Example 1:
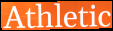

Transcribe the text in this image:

Athletic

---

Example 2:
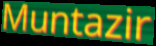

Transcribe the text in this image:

Muntazir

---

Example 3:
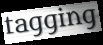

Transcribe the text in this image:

tagging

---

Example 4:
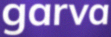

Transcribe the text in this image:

garva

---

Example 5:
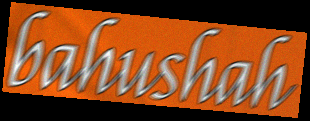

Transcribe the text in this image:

bahushah